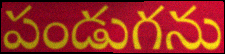
పండుగను